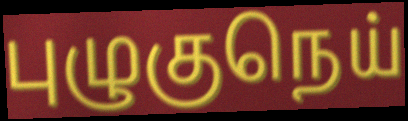
புழுகுநெய்